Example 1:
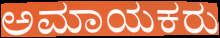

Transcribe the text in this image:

ಅಮಾಯಕರು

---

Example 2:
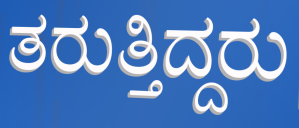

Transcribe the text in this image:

ತರುತ್ತಿದ್ದರು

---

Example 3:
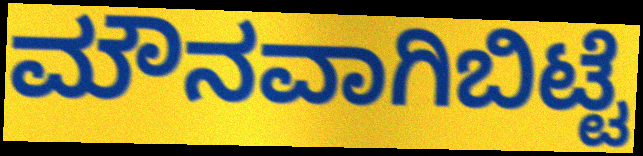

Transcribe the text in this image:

ಮೌನವಾಗಿಬಿಟ್ಟೆ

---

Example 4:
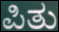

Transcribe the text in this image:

ಪಿತು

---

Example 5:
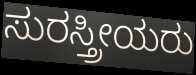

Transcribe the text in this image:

ಸುರಸ್ತ್ರೀಯರು